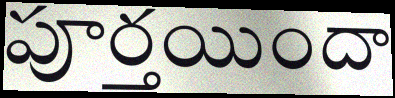
పూర్తయిందా